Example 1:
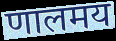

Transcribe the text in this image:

णालमय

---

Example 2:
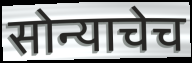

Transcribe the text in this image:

सोन्याचेच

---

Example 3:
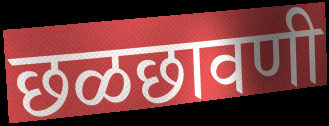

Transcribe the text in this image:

छळछावणी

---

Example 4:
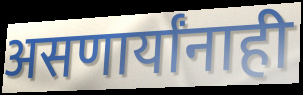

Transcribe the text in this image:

असणार्यांनाही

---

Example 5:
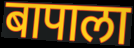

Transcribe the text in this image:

बापाला